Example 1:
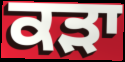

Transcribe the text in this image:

ਕੜਾ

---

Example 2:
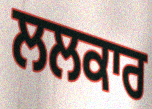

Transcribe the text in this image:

ਲਲਕਾਰ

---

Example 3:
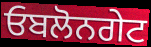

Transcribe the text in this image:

ਓਬਲੋਨਗੇਟ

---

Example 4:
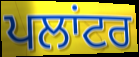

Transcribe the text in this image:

ਪਲਾਂਟਰ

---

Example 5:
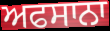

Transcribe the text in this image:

ਅਫਸਾਨਾ